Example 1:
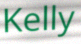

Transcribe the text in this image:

Kelly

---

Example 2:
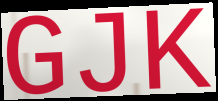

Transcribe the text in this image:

GJK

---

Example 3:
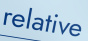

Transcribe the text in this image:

relative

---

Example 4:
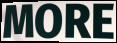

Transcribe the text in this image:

MORE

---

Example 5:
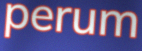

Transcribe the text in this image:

perum